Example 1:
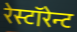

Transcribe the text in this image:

रेस्टॉरेन्ट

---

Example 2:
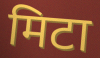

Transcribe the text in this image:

मिटा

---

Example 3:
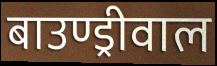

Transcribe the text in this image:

बाउण्ड्रीवाल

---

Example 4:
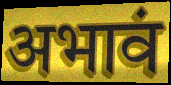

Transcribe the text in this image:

अभावं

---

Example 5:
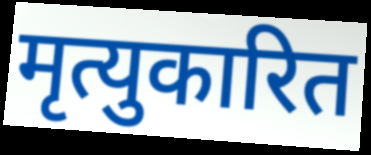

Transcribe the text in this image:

मृत्युकारित